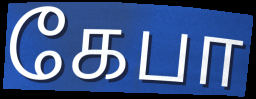
கேபா